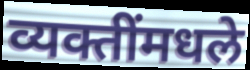
व्यक्तींमधले